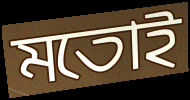
মতোই